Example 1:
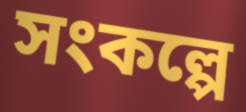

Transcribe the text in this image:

সংকল্পে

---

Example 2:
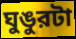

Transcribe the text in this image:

ঘুঙুরটা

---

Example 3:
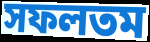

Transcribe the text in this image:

সফলতম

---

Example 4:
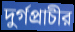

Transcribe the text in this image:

দুর্গপ্রাচীর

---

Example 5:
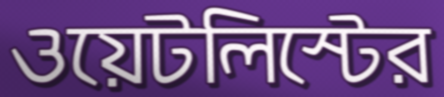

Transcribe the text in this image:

ওয়েটলিস্টের